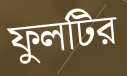
ফুলটির